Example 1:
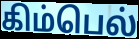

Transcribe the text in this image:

கிம்பெல்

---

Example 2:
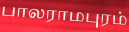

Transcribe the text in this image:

பாலராமபுரம்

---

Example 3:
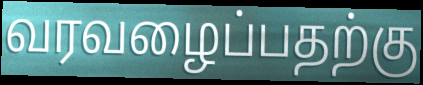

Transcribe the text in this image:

வரவழைப்பதற்கு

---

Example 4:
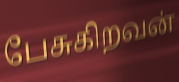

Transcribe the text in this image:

பேசுகிறவன்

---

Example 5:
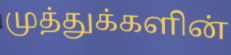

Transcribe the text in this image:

முத்துக்களின்